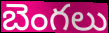
బెంగలు